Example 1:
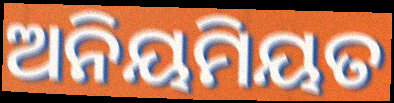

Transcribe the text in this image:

ଅନିୟମିୟତ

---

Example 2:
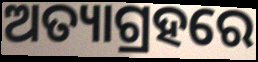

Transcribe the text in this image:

ଅତ୍ୟାଗ୍ରହରେ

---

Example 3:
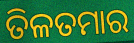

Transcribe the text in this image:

ତିଳତମାର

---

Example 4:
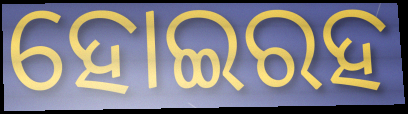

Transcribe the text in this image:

ହୋଇରହ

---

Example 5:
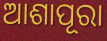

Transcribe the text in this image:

ଆଶାପୂରା